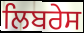
ਲਿਬਰੇਸ